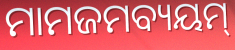
ମାମଜମବ୍ୟୟମ୍